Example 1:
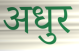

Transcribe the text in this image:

अधुर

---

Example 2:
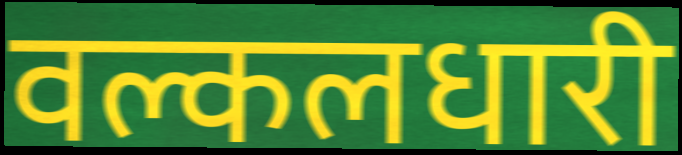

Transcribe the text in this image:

वल्कलधारी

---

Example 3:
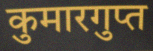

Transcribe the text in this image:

कुमारगुप्त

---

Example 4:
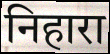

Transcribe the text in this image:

निहारा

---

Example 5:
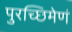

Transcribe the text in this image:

पुरच्छिमेणं